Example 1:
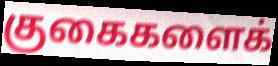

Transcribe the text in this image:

குகைகளைக்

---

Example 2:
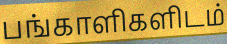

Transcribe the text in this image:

பங்காளிகளிடம்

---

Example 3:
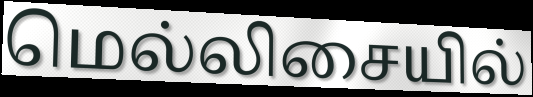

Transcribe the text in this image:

மெல்லிசையில்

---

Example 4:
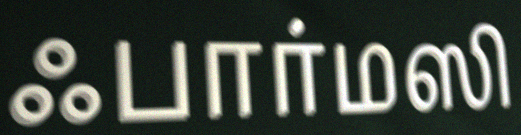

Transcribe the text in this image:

ஃபார்மஸி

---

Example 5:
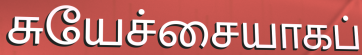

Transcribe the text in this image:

சுயேச்சையாகப்